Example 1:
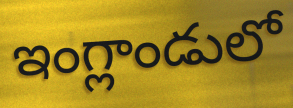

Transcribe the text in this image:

ఇంగ్లాండులో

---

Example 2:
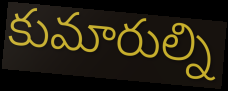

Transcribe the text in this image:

కుమారుల్ని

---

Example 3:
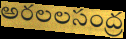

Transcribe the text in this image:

అరలలసంద్ర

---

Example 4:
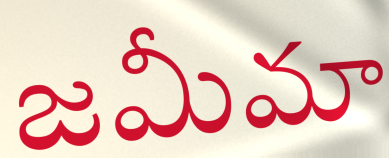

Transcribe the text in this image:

జమీమా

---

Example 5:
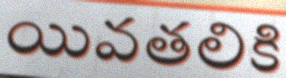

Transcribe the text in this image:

యివతలికి